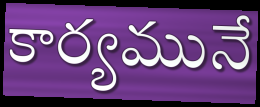
కార్యమునే